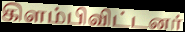
கிளம்பிவிட்டனர்